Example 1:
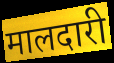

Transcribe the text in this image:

मालदारी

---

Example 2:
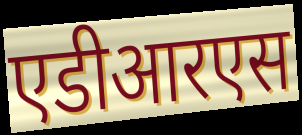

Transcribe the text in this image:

एडीआरएस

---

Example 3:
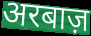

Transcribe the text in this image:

अरबाज़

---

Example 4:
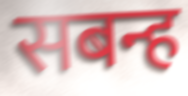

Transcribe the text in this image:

सबन्ह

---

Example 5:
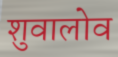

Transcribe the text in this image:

शुवालोव